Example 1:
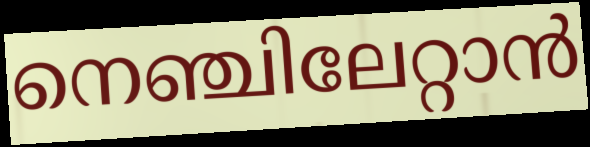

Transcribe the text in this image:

നെഞ്ചിലേറ്റാൻ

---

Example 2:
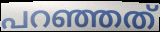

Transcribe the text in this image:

പറഞ്ഞത്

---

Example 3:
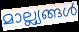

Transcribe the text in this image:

മാല്ല്യങ്ങൾ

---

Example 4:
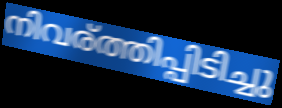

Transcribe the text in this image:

നിവര്ത്തിപ്പിടിച്ചു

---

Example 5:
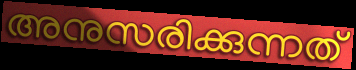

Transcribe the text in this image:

അനുസരിക്കുന്നത്